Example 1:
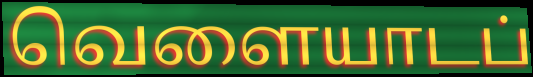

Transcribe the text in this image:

வெளையாடப்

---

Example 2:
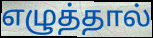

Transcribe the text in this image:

எழுத்தால்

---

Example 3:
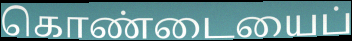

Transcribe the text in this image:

கொண்டையைப்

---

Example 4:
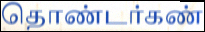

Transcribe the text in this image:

தொண்டர்கண்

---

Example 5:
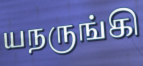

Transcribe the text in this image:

யநருங்கி